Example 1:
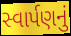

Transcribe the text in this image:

સ્વાર્પણનું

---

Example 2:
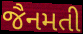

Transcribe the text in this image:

જૈનમતી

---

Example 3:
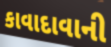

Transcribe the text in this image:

કાવાદાવાની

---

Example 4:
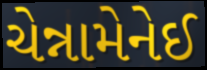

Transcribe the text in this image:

ચેન્નામેનેઈ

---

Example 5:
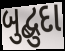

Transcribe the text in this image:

બુદ્બુદા